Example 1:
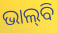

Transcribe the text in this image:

ଭାଲ୍‌ବି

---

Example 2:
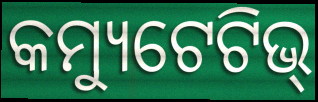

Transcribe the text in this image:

କମ୍ୟୁଟେଟିଭ୍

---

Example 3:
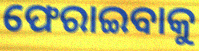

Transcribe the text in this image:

ଫେରାଇବାକୁ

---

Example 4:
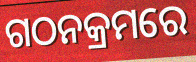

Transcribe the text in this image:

ଗଠନକ୍ରମରେ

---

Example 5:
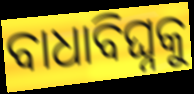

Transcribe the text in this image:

ବାଧାବିଘ୍ନକୁ